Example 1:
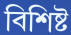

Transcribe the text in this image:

বিশিষ্ট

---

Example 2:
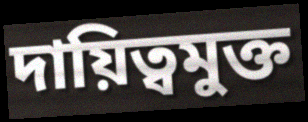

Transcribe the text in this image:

দায়িত্বমুক্ত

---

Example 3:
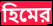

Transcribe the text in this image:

হিমের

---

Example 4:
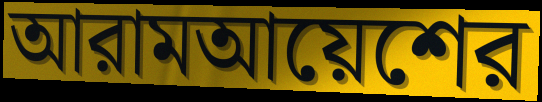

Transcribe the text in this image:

আরামআয়েশের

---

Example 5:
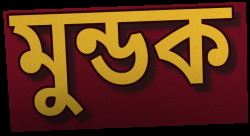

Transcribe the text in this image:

মুন্ডক